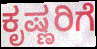
ಕೃಷ್ಣರಿಗೆ